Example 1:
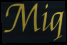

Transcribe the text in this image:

Miq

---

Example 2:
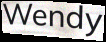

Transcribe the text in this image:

Wendy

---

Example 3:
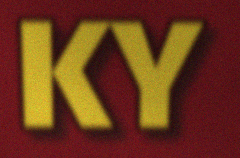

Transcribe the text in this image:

KY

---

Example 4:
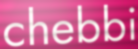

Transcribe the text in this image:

chebbi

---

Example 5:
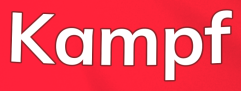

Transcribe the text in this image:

Kampf